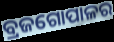
ବ୍ରଜଗୋପାଳର